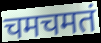
चमचमतं